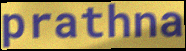
prathna